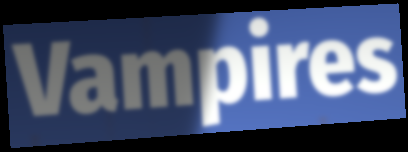
Vampires